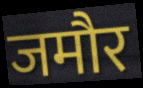
जमौर